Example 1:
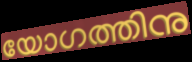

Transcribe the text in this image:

യോഗത്തിനു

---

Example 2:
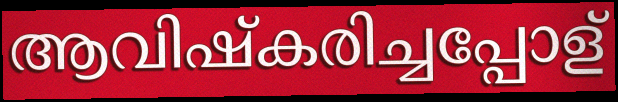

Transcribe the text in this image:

ആവിഷ്കരിച്ചപ്പോള്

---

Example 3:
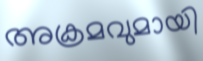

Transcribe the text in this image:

അക്രമവുമായി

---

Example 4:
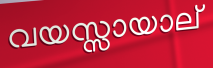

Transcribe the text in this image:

വയസ്സായാല്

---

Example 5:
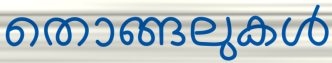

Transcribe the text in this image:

തൊങ്ങലുകൾ